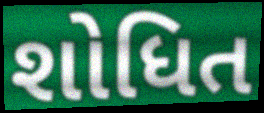
શોધિત